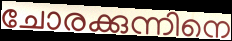
ചോരക്കുന്നിനെ